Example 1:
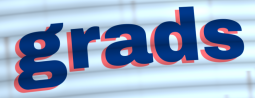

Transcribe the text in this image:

grads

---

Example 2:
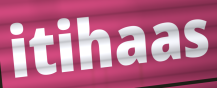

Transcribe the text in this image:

itihaas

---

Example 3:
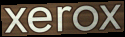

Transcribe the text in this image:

xerox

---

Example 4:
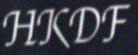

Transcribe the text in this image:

HKDF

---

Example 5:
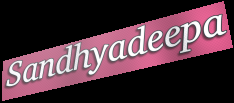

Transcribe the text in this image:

Sandhyadeepa